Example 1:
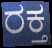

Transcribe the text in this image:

ರಕ್ತ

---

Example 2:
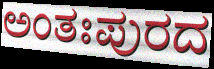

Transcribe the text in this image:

ಅಂತಃಪುರದ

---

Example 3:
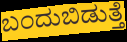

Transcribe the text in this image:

ಬಂದುಬಿಡುತ್ತೆ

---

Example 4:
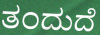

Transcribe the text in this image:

ತಂದುದೆ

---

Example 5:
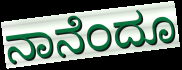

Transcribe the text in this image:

ನಾನೆಂದೂ